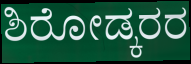
ಶಿರೋಡ್ಕರರ